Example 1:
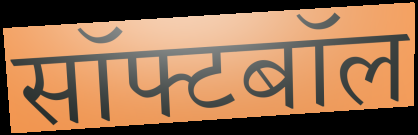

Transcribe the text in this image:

सॉफ्टबॉल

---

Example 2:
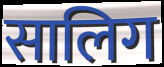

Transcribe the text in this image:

सालिग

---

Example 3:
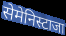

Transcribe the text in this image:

सेमेनिस्टाजा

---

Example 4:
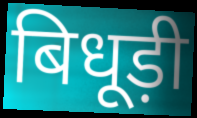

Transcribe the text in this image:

बिधूड़ी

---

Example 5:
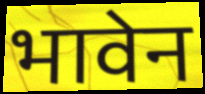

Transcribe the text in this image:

भावेन